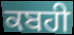
ਕਬਹੀ